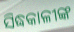
ସିଦ୍ଧକାଳୀଙ୍କ